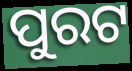
ପୁରଟ